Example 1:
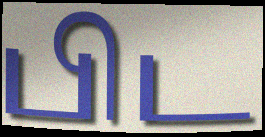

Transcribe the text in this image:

பிட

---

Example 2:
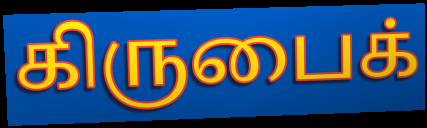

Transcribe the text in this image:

கிருபைக்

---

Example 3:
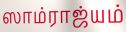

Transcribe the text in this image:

ஸாம்ராஜ்யம்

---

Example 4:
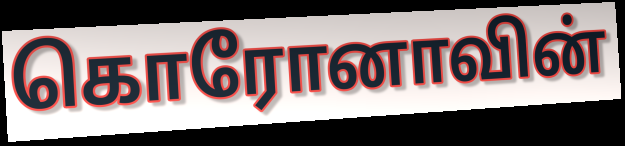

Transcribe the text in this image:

கொரோனாவின்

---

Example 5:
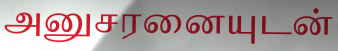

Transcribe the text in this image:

அனுசரனையுடன்